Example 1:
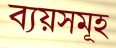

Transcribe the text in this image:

ব্যয়সমূহ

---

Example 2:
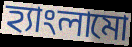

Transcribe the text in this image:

হ্যাংলামো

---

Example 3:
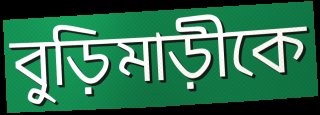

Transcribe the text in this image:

বুড়িমাড়ীকে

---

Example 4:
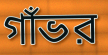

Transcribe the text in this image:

গাঁভর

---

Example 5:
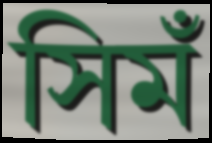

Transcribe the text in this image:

সিমঁ